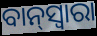
ବାନ୍‌ସ୍ୱାରା